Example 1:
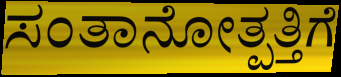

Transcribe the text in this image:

ಸಂತಾನೋತ್ಪತ್ತಿಗೆ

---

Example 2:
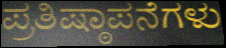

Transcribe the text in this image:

ಪ್ರತಿಷ್ಠಾಪನೆಗಳು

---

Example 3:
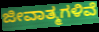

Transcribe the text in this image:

ಜೀವಾತ್ಮಗಳಿವೆ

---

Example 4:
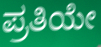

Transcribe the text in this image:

ಪ್ರತಿಯೇ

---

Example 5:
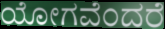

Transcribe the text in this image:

ಯೋಗವೆಂದರೆ